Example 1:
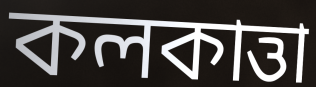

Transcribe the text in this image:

কলকাত্তা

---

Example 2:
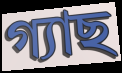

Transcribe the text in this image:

গ্যাছ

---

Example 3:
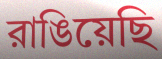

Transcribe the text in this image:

রাঙিয়েছি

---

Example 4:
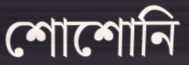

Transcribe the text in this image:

শোশোনি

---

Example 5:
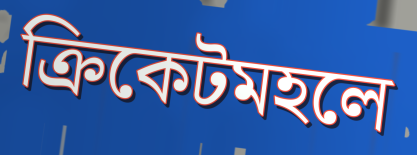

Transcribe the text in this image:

ক্রিকেটমহলে